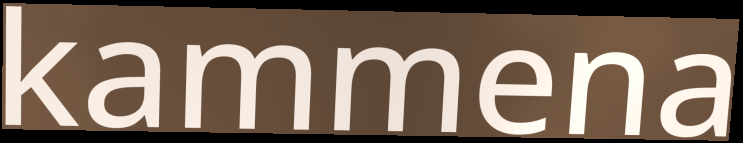
kammena